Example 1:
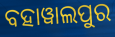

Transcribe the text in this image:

ବହାୱାଲପୁର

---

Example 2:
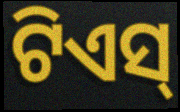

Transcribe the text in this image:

ଟିଏସ୍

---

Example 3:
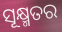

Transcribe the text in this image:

ସୂକ୍ଷ୍ମତର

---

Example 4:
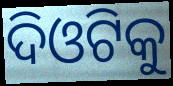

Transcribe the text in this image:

ଦିଓଟିକୁ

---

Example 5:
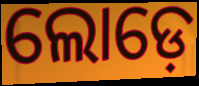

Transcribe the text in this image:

ଲୋଡ଼େ